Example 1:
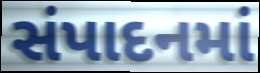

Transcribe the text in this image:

સંપાદનમાં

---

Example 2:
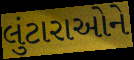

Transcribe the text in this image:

લુંટારાઓને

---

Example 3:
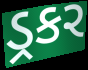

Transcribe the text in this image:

ડ્રકર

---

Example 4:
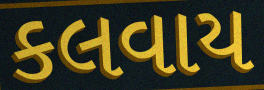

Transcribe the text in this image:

કલવાય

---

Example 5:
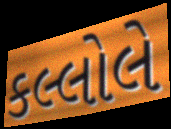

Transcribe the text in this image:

કલ્લોલે